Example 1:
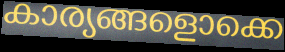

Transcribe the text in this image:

കാര്യങ്ങളൊക്കെ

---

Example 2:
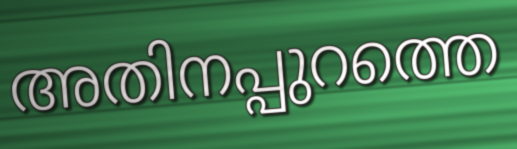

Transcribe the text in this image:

അതിനപ്പുറത്തെ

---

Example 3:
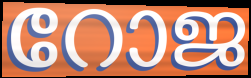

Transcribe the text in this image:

റോജ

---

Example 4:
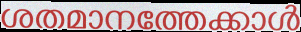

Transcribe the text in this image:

ശതമാനത്തേക്കാൾ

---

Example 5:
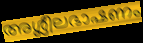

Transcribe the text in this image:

അശ്ലീലഭാഷണം